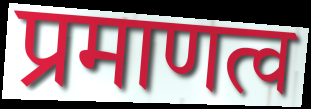
प्रमाणत्व